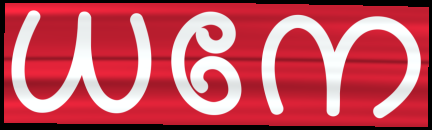
ധനേ